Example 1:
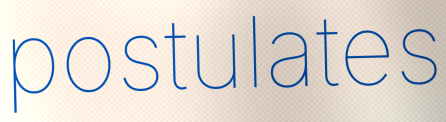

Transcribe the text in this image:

postulates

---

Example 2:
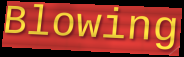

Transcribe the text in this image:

Blowing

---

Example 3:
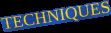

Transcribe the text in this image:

TECHNIQUES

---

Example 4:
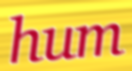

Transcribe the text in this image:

hum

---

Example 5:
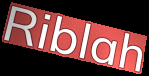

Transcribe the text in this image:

Riblah